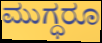
ಮುಗ್ಧರೂ